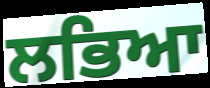
ਲਭਿਆ